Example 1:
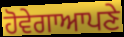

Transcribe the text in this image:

ਹੋਵੇਗਾਆਪਣੇ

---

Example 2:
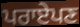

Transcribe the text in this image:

ਪਰਾਏਪਣ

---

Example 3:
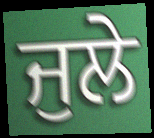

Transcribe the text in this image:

ਜੁਲੇ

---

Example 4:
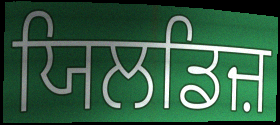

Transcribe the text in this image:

ਯਿਲਡਿਜ਼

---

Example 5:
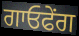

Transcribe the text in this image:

ਗਾਓਫੇਂਗ